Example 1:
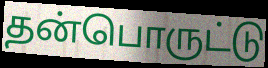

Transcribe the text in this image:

தன்பொருட்டு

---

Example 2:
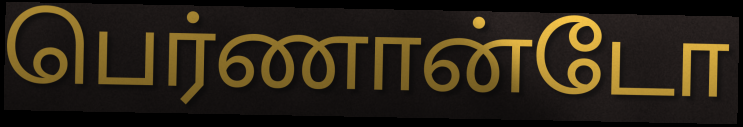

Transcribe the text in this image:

பெர்ணான்டோ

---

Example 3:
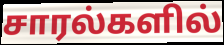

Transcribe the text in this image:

சாரல்களில்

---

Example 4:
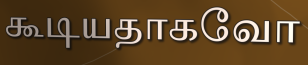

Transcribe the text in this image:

கூடியதாகவோ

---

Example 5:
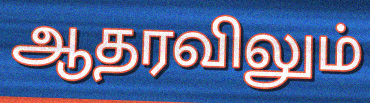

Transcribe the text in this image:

ஆதரவிலும்